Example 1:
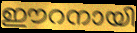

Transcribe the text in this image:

ഈറനായി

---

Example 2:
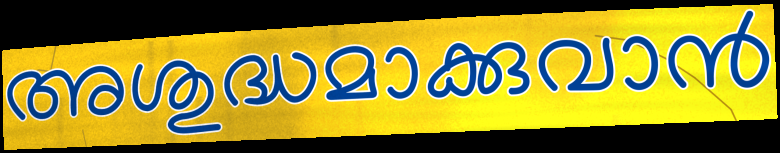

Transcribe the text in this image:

അശുദ്ധമാക്കുവാൻ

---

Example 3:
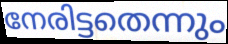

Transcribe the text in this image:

നേരിട്ടതെന്നും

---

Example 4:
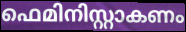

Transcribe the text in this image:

ഫെമിനിസ്റ്റാകണം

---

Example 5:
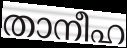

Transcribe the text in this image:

താനീഹ